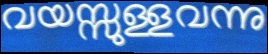
വയസ്സുള്ളവന്നു